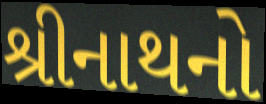
શ્રીનાથનો